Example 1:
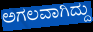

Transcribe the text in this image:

ಅಗಲವಾಗಿದ್ದು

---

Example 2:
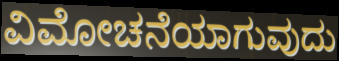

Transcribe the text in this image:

ವಿಮೋಚನೆಯಾಗುವುದು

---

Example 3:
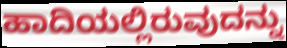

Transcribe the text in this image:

ಹಾದಿಯಲ್ಲಿರುವುದನ್ನು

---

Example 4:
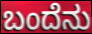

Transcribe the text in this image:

ಬಂದೆನು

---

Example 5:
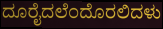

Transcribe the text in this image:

ದೂರೈದಲೆಂದೊರಲಿದಳು